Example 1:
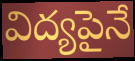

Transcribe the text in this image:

విద్యపైనే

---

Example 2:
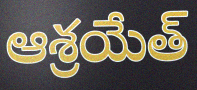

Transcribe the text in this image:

ఆశ్రయేత్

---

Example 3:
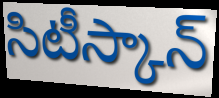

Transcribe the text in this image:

సిటీస్కాన్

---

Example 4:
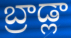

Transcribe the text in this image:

బ్రాడ్లా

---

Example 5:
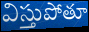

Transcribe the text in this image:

విస్తుపోతూ